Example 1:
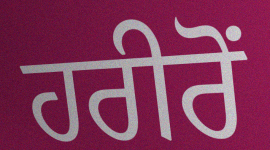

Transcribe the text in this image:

ਹਰੀਰੋਂ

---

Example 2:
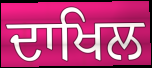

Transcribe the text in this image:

ਦਾਖਿਲ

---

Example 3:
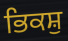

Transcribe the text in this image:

ਭਿਕਸ਼ੁ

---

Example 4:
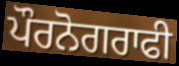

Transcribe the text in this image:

ਪੌਰਨੋਗਰਾਫੀ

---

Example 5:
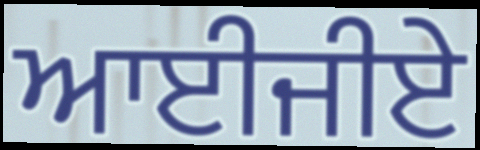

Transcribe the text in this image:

ਆਈਜੀਏ